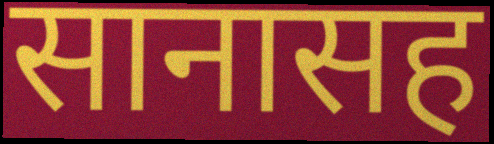
सानासह